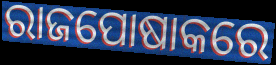
ରାଜପୋଷାକରେ